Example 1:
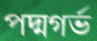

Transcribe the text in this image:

পদ্মগর্ভ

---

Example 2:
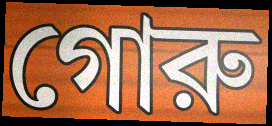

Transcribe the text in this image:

গোরু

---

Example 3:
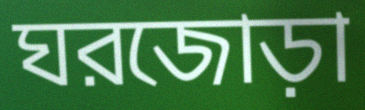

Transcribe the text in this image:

ঘরজোড়া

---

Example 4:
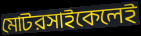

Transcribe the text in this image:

মোটরসাইকেলেই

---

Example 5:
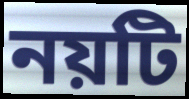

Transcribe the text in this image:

নয়টি